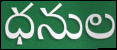
ధనుల